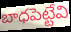
బాధపెట్టేవి